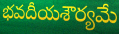
భవదీయశౌర్యమే